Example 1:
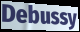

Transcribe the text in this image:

Debussy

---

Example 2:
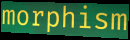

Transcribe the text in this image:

morphism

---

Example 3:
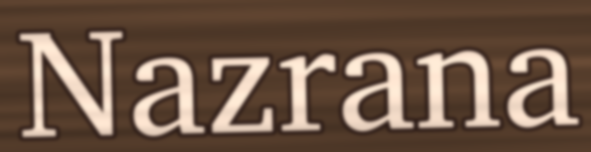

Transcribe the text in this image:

Nazrana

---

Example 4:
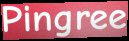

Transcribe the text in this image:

Pingree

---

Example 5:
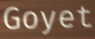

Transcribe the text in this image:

Goyet